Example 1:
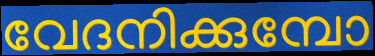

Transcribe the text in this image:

വേദനിക്കുമ്പോ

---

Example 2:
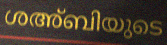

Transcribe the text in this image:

ശഅ്ബിയുടെ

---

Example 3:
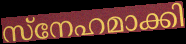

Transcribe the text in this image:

സ്നേഹമാക്കി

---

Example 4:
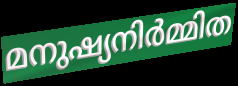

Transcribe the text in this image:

മനുഷ്യനിർമ്മിത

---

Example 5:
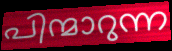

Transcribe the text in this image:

പിന്മാറുന്ന